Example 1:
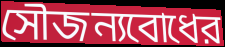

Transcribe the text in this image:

সৌজন্যবোধের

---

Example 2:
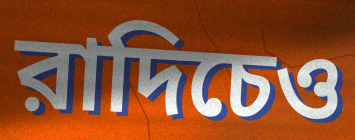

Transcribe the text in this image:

রাদিচেও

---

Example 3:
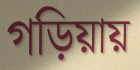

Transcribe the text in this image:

গড়িয়ায়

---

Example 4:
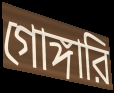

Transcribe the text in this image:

গোঙ্গারি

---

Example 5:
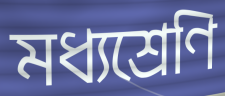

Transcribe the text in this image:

মধ্যশ্রেণি